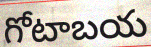
గోటాబయ